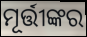
ମୂର୍ତ୍ତୀଙ୍କର